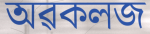
অৱকলজ